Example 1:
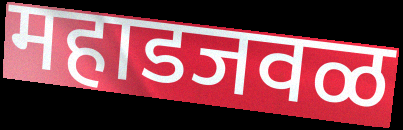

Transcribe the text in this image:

महाडजवळ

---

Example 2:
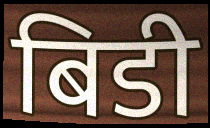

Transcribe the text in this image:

बिडी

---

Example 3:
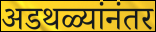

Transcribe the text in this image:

अडथळ्यांनंतर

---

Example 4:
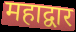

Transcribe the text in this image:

महाद्वार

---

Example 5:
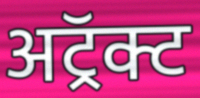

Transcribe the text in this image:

अट्रॅक्ट